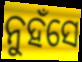
ନୁହଁସେ